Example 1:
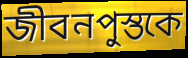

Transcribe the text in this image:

জীবনপুস্তকে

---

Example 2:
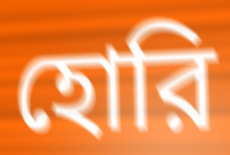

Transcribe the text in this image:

হোরি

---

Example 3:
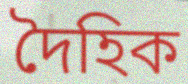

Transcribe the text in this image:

দৈহিক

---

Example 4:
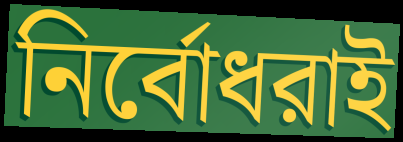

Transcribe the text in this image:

নির্বোধরাই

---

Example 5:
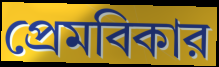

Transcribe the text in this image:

প্রেমবিকার